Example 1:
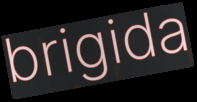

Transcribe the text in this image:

brigida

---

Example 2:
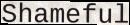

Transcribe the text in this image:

Shameful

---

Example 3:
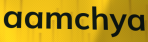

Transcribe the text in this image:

aamchya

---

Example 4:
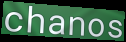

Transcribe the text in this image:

chanos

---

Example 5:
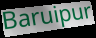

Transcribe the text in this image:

Baruipur